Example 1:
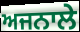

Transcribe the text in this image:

ਅਜਨਾਲੇ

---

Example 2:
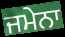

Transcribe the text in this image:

ਜਮੇਨਾ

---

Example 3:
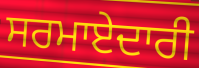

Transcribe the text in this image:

ਸਰਮਾਏਦਾਰੀ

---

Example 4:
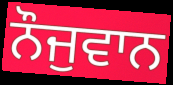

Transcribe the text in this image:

ਨੌਜੁਵਾਨ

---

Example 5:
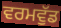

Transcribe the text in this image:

ਵਰਮਵੁੱਡ